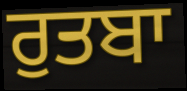
ਰੁਤਬਾ